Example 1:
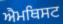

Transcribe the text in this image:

ਐਮਥਿਸਟ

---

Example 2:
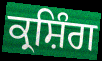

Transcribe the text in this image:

ਕ੍ਰਸ਼ਿੰਗ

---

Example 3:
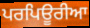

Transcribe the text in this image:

ਪਰਪਿਊਰੀਆ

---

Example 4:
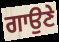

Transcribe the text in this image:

ਗਾਉਣੇ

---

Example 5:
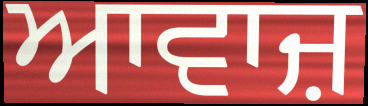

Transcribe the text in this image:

ਆਵਾਜ਼